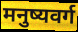
मनुष्यवर्ग